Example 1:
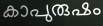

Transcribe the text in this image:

കാപുരുഷം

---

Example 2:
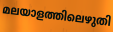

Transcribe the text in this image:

മലയാളത്തിലെഴുതി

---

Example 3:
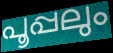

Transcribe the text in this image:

പൂപ്പലും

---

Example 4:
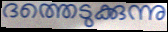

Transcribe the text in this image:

ദത്തെടുക്കുന്നു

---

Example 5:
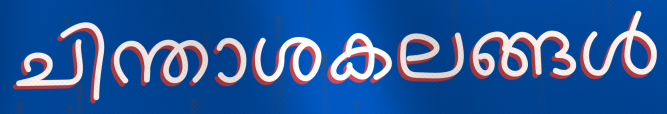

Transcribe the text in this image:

ചിന്താശകലങ്ങൾ